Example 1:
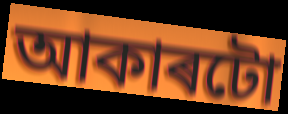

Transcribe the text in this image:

আকাৰটো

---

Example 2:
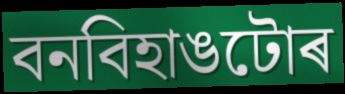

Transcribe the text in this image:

বনবিহাঙটোৰ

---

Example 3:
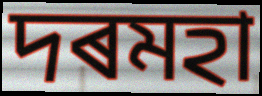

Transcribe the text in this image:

দৰমহা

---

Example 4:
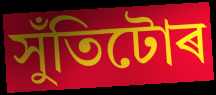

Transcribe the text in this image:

সুঁতিটোৰ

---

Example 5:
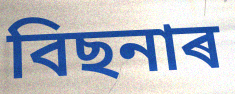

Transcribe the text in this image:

বিছনাৰ